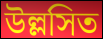
উল্লসিত